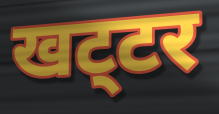
खट्‌टर